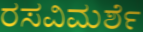
ರಸವಿಮರ್ಶೆ